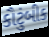
કૌટુંબીક